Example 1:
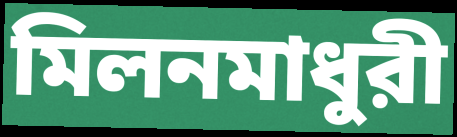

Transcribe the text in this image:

মিলনমাধুরী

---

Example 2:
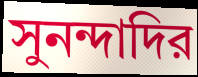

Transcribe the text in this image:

সুনন্দাদির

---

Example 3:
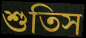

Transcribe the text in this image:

শুতিস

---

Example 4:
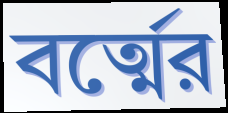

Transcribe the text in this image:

বর্ত্মের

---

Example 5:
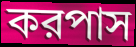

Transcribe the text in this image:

করপাস